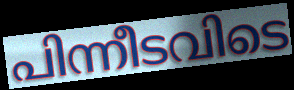
പിന്നീടവിടെ